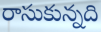
రాసుకున్నది